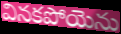
వినకపోయెను